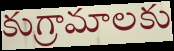
కుగ్రామాలకు